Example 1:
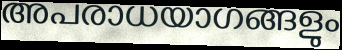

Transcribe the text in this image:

അപരാധയാഗങ്ങളും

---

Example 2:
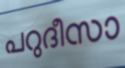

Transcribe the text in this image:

പറുദീസാ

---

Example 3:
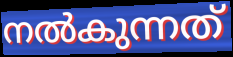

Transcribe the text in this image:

നൽകുന്നത്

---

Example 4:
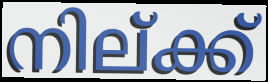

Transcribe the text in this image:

നില്ക്ക്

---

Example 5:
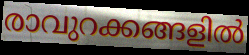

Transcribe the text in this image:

രാവുറക്കങ്ങളിൽ